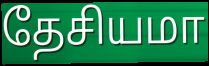
தேசியமா